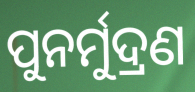
ପୁନର୍ମୁଦ୍ରଣ